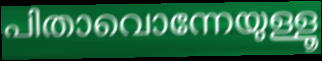
പിതാവൊന്നേയുള്ളൂ